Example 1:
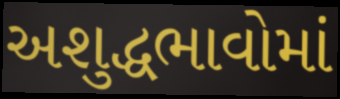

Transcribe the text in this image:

અશુદ્ધભાવોમાં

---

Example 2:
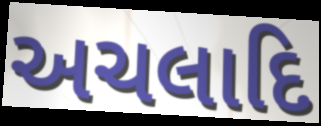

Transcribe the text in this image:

અચલાદિ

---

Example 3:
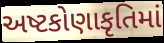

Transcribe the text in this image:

અષ્ટકોણાકૃતિમાં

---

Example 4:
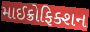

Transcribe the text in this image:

માઈક્રોફિક્શન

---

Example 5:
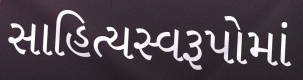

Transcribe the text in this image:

સાહિત્યસ્વરૂપોમાં